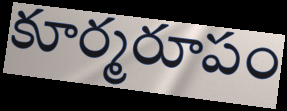
కూర్మరూపం